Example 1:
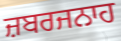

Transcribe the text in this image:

ਜ਼ਬਰਜਨਾਹ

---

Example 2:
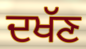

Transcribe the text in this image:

ਦਖੱਣ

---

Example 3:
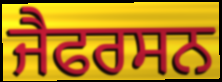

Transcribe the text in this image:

ਜੈਫਰਸਨ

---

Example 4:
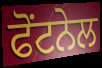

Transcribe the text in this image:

ਫੋਂਟਨੇਲ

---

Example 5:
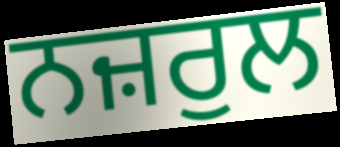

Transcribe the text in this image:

ਨਜ਼ਰੁਲ